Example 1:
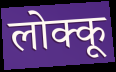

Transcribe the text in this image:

लोक्कू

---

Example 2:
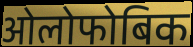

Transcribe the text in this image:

ओलोफोबिक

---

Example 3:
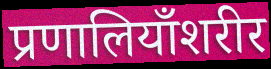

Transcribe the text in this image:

प्रणालियाँशरीर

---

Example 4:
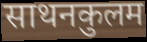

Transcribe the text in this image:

साथनकुलम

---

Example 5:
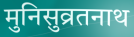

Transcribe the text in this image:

मुनिसुव्रतनाथ